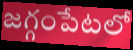
జగ్గంపేటలో